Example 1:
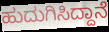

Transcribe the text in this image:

ಹುದುಗಿಸಿದ್ದಾನೆ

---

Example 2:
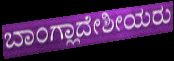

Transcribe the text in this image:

ಬಾಂಗ್ಲಾದೇಶೀಯರು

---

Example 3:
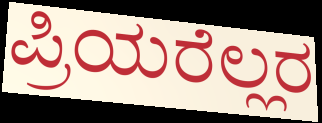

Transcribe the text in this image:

ಪ್ರಿಯರೆಲ್ಲರ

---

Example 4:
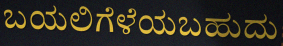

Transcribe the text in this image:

ಬಯಲಿಗೆಳೆಯಬಹುದು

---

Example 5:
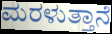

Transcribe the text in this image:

ಮರಳುತ್ತಾನೆ